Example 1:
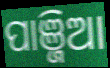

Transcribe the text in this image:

ପାଞ୍ଜିଆ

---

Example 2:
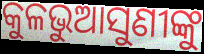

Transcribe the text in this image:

କୁଳଭୁଆସୁଣୀଙ୍କୁ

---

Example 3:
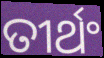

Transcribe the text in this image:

ତୀର୍ଥଂ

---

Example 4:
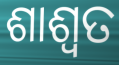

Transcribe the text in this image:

ଶାଶ୍ୱତ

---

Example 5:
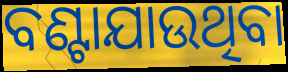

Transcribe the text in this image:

ବଣ୍ଟାଯାଉଥିବା